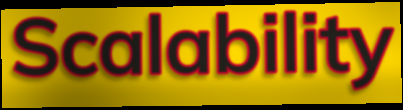
Scalability